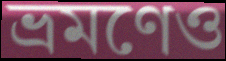
ভ্রমণেও